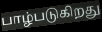
பாழ்படுகிறது